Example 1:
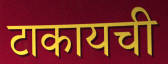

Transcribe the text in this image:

टाकायची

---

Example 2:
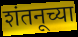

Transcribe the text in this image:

शंतनूच्या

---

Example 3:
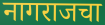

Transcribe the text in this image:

नागराजचा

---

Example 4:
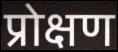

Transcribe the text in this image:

प्रोक्षण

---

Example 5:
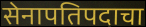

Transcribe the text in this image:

सेनापतिपदाचा